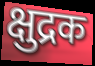
क्षुद्रक